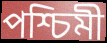
পশ্চিমী